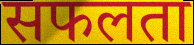
सफलता